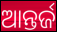
ଆନ୍ତର୍ଜ